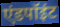
एंडपॉइंट